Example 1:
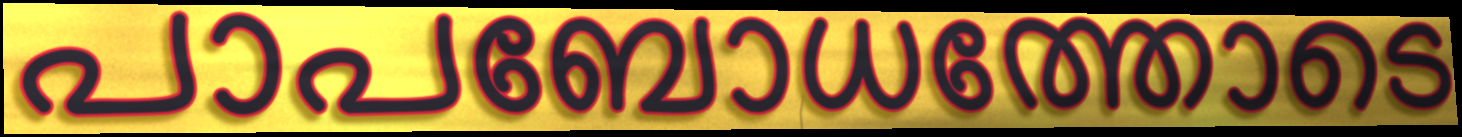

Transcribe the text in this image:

പാപബോധത്തോടെ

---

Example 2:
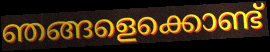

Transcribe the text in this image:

ഞങ്ങളെക്കൊണ്ട്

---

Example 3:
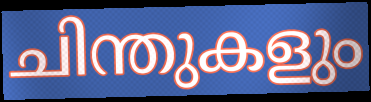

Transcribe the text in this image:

ചിന്തുകളും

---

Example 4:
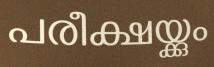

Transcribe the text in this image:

പരീക്ഷയ്ക്കും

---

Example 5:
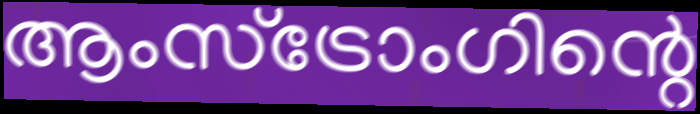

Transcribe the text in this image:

ആംസ്ട്രോംഗിന്റെ